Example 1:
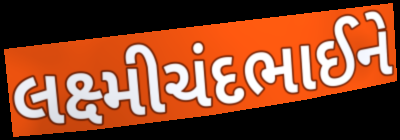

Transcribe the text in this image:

લક્ષ્મીચંદભાઈને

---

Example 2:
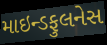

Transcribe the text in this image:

માઇન્ડફુલનેસ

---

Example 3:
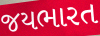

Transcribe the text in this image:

જયભારત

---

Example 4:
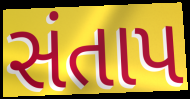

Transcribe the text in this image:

સંતાપ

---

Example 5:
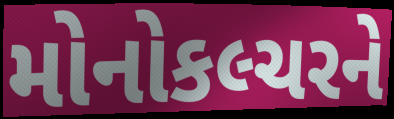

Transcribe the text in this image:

મોનોકલ્ચરને